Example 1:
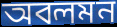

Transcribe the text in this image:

অবলমন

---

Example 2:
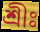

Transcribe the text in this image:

শ্রীঃ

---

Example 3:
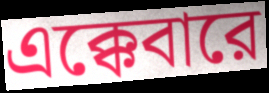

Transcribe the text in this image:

এক্কেবারে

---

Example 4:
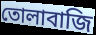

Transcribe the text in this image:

তোলাবাজি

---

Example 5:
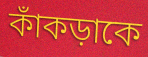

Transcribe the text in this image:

কাঁকড়াকে